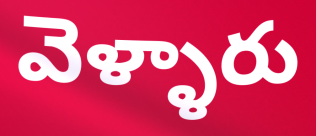
వెళ్ళారు